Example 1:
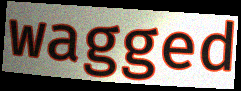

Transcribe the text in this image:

wagged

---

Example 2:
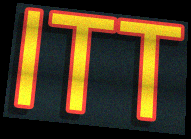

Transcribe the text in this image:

ITT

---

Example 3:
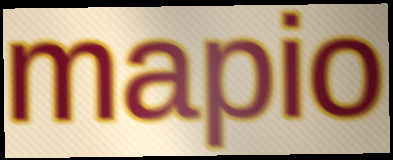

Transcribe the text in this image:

mapio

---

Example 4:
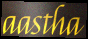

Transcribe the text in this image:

aastha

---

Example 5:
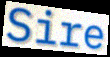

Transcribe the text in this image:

Sire